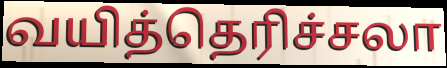
வயித்தெரிச்சலா